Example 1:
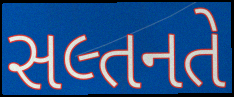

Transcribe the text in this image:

સલ્તનતે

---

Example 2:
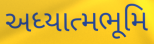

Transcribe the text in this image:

અધ્યાત્મભૂમિ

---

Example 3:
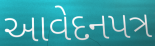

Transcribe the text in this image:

આવેદનપત્ર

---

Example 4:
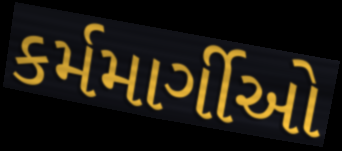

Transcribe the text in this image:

કર્મમાર્ગીઓ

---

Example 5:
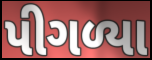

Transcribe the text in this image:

પીગળ્યા